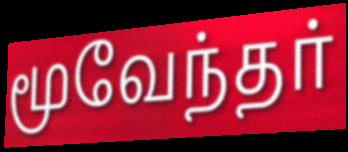
மூவேந்தர்